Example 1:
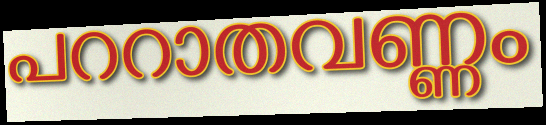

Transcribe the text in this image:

പററാതവണ്ണം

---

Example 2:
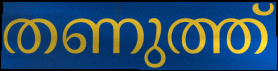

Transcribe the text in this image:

തണുത്ത്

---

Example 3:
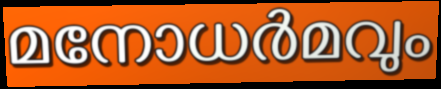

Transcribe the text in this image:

മനോധർമവും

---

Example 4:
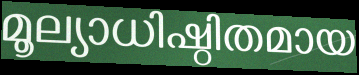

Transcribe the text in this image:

മൂല്യാധിഷ്ഠിതമായ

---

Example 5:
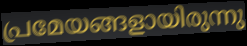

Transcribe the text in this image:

പ്രമേയങ്ങളായിരുന്നു